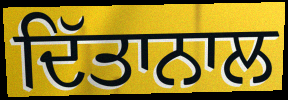
ਦਿੱਤਾਨਾਲ